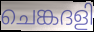
ചെങ്കദളി